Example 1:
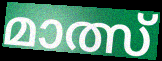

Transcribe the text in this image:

മാത്സ്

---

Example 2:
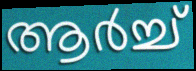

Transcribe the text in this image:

ആർച്ച്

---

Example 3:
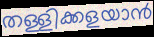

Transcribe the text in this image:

തള്ളിക്കളയാൻ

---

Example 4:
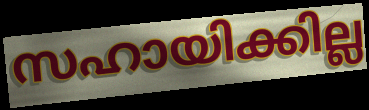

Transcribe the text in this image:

സഹായിക്കില്ല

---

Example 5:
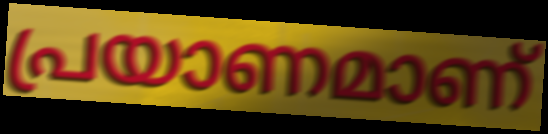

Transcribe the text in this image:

പ്രയാണമാണ്